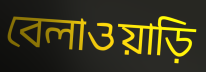
বেলাওয়াড়ি